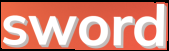
sword